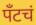
पँटचं